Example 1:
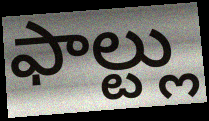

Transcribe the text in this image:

ఫాల్ట్లు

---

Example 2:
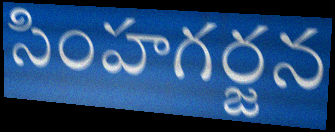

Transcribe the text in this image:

సింహగర్జన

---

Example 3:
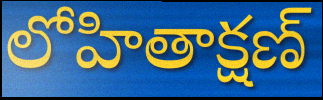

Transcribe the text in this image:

లోహితాక్షణ్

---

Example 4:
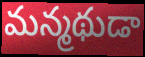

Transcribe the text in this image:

మన్మథుడా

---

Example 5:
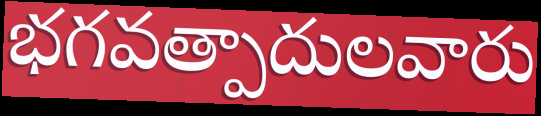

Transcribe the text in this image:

భగవత్పాదులవారు